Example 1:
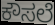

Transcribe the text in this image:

ಕೌಸಲೆ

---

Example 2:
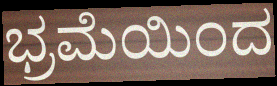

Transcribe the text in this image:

ಭ್ರಮೆಯಿಂದ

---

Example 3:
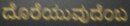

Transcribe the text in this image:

ದೊರೆಯುವುದೆಂಬ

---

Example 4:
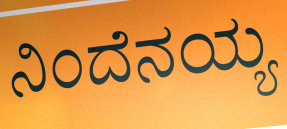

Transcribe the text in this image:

ನಿಂದೆನಯ್ಯ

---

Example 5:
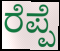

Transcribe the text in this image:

ರೆಪ್ಪೆ